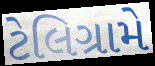
ટેલિગ્રામે